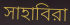
সাহাবিরা